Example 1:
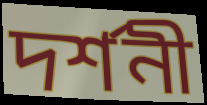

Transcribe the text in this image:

দৰ্শনী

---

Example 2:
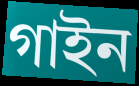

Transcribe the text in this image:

গাইন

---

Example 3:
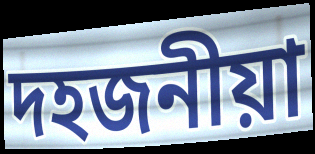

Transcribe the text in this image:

দহজনীয়া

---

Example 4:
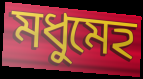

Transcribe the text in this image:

মধুমেহ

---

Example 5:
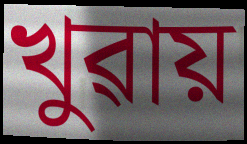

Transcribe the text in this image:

খুৱায়